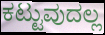
ಕಟ್ಟುವುದಲ್ಲ